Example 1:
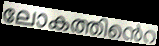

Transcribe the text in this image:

ലോകത്തിൻെറ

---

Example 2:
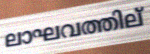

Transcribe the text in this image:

ലാഘവത്തില്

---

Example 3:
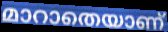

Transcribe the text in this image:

മാറാതെയാണ്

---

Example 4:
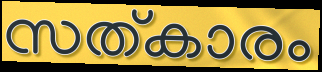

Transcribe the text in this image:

സത്കാരം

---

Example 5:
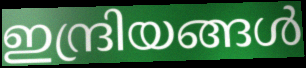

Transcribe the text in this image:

ഇന്ദ്രിയങ്ങൾ